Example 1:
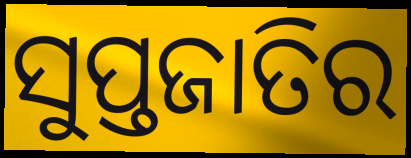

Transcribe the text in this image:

ସୁପ୍ତଜାତିର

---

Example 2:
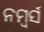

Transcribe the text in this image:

ନମ୍ୱର୍ସ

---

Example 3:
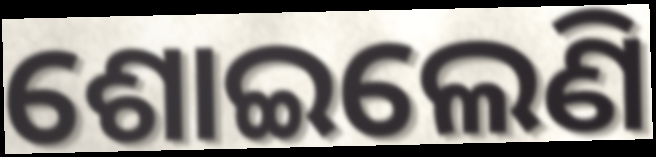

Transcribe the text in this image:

ଶୋଇଲେଣି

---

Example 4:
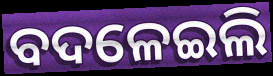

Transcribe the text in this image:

ବଦଳେଇଲି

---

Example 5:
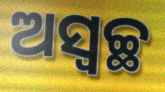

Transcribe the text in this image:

ଅସ୍ଵଚ୍ଛ